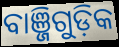
ବାଞ୍ଜିଗୁଡ଼ିକ